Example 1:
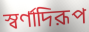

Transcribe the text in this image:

স্বর্ণাদিরূপ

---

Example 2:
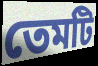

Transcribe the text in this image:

তেমটি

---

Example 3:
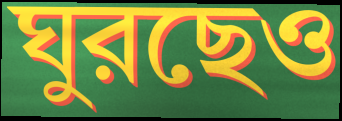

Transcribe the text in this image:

ঘুরছেও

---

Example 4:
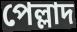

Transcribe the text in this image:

পেল্লাদ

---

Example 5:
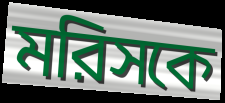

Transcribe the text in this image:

মরিসকে